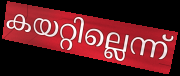
കയറ്റില്ലെന്ന്